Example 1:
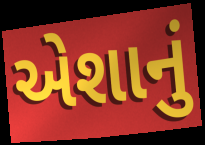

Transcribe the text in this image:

એશાનું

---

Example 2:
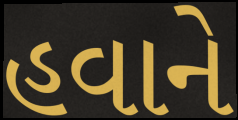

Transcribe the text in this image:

હવાને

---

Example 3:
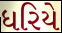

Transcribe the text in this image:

ધરિયે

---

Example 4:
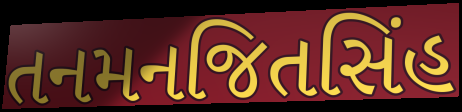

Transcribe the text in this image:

તનમનજિતસિંહ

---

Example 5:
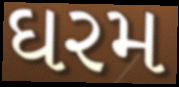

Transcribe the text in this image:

ઘરમ